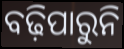
ବଢ଼ିପାରୁନି